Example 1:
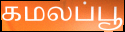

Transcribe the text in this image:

கமலப்பூ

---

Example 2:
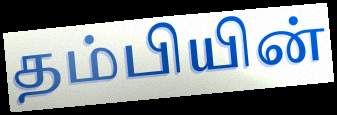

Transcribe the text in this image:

தம்பியின்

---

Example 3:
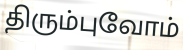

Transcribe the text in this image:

திரும்புவோம்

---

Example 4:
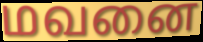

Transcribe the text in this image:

மவனை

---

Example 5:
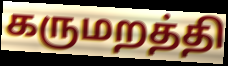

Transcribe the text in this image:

கருமறத்தி